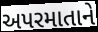
અપરમાતાને